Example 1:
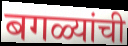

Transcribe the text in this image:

बगळ्यांची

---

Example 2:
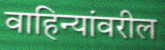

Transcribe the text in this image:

वाहिन्यांवरील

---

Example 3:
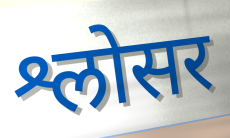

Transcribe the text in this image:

श्लोसर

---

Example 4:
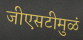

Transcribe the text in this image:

जीएसटीमुळं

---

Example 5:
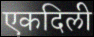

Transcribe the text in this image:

एकदिली